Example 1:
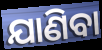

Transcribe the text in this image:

ଯାଣିବା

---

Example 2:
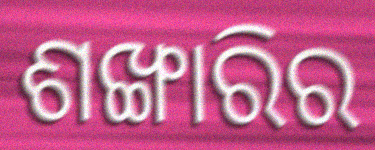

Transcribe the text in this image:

ଶଙ୍ଖାରିର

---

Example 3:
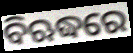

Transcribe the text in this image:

ବିଋଦ୍ଧରେ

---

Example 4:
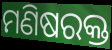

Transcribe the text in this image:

ମଣିଷରକ୍ତ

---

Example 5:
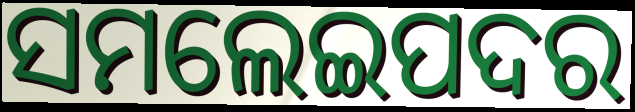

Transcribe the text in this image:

ସମଲେଇପଦର